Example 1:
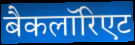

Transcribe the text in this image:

बैकलॉरिएट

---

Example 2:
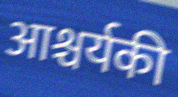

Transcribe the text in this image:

आश्चर्यकी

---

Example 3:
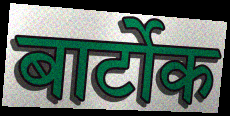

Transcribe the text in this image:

बार्टोक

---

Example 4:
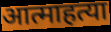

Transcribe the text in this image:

आत्माहत्या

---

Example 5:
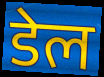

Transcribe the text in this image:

डेल